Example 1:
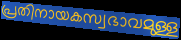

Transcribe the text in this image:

പ്രതിനായകസ്വഭാവമുള്ള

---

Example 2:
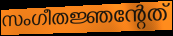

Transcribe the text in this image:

സംഗീതജ്ഞന്റേത്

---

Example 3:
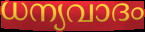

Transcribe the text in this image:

ധന്യവാദം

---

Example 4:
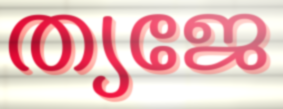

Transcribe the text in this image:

ത്യജേ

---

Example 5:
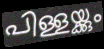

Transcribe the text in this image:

പിള്ളയ്ക്കും